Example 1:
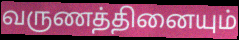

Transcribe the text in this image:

வருணத்தினையும்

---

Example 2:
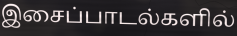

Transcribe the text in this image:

இசைப்பாடல்களில்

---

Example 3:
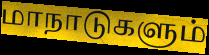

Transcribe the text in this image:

மாநாடுகளும்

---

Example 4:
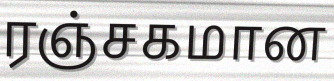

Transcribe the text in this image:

ரஞ்சகமான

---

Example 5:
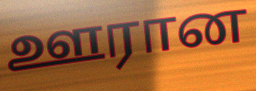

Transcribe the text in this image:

ஊரான